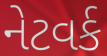
નેટવર્ક